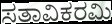
ಸತಾವಿಕರಮಿ